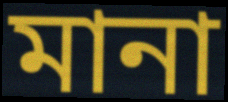
মানা